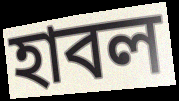
হাবল